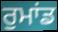
ਰੁਮਾਂਡ